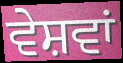
ਵੇਸ਼ਵਾਂ